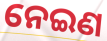
ନେଇଣ